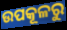
ଉପକୂଳରୁ